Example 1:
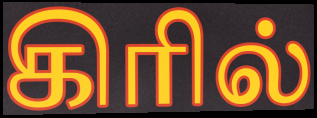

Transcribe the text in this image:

கிரில்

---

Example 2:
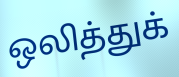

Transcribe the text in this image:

ஒலித்துக்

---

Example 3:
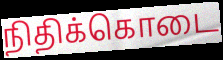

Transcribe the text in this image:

நிதிக்கொடை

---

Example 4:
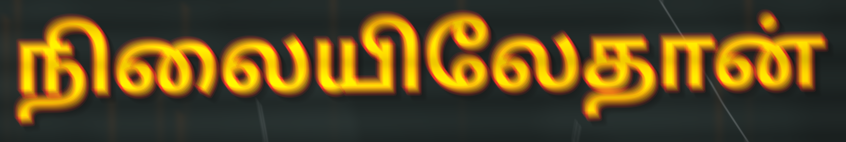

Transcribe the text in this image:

நிலையிலேதான்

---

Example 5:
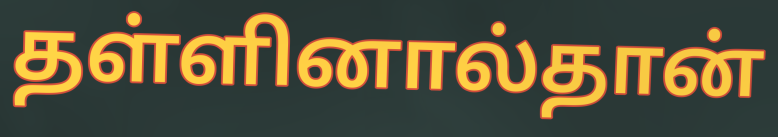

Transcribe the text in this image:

தள்ளினால்தான்